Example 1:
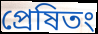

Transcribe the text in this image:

প্রেষিতং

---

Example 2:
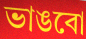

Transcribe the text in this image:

ভাঙবো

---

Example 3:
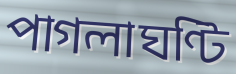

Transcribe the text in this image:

পাগলাঘণ্টি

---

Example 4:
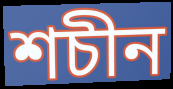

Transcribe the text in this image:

শচীন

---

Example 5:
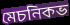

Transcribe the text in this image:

মেচনিকভ